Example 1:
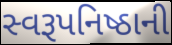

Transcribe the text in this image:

સ્વરૂપનિષ્ઠાની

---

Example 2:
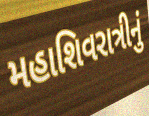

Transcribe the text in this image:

મહાશિવરાત્રીનું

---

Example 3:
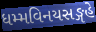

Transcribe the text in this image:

ધમ્મવિનયસઙ્ગહે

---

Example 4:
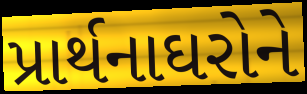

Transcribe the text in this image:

પ્રાર્થનાઘરોને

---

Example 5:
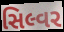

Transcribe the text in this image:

સિલ્વર